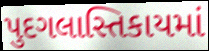
પુદગલાસ્તિકાયમાં